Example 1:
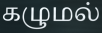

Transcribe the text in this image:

கழுமல்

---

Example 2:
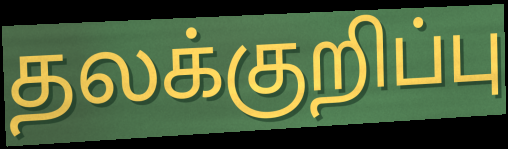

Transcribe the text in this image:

தலக்குறிப்பு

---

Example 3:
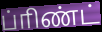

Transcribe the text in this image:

ப்ரிண்ட்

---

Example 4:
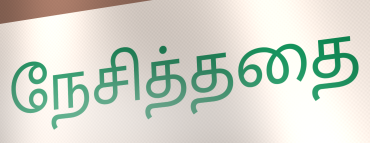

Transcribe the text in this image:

நேசித்ததை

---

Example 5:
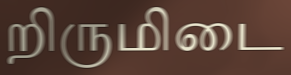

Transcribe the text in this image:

றிருமிடை